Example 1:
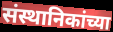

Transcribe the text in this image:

संस्थानिकांच्या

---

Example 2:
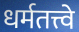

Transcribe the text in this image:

धर्मतत्त्वे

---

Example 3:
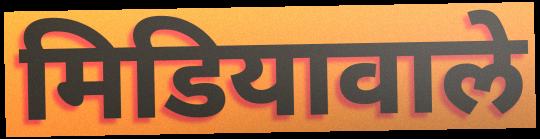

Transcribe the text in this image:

मिडियावाले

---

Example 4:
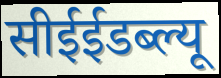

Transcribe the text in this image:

सीईईडब्ल्यू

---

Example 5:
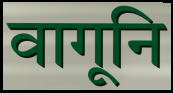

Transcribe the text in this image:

वागूनि